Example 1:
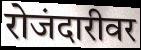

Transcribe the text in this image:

रोजंदारीवर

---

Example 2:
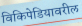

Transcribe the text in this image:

विकिपेडियावरील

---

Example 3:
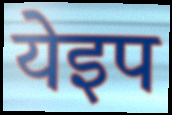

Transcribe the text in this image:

येइप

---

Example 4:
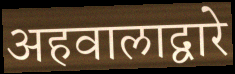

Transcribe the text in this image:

अहवालाद्वारे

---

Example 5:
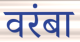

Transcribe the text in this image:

वरंबा